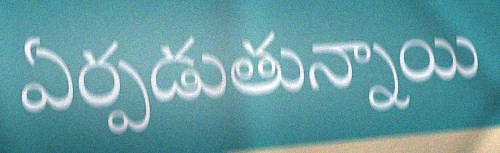
ఏర్పడుతున్నాయి